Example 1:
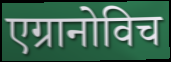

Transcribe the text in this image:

एग्रानोविच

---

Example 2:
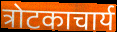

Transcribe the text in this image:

त्रोटकाचार्य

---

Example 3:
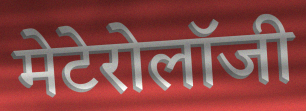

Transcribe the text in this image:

मेटेरोलॉजी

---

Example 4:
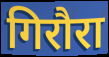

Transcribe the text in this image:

गिरौरा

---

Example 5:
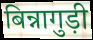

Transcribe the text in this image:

बिन्नागुड़ी